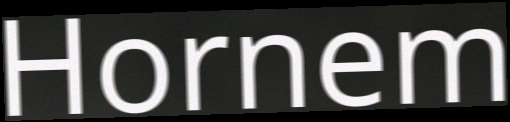
Hornem